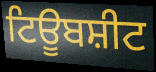
ਟਿਊਬਸ਼ੀਟ